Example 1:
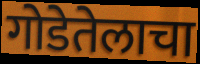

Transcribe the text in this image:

गोडेतेलाचा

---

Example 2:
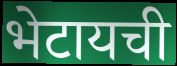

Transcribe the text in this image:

भेटायची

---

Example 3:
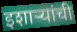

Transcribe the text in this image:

इशाऱ्यांची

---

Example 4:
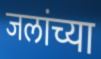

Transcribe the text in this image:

जलांच्या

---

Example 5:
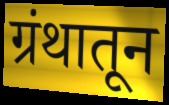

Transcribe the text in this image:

ग्रंथातून